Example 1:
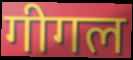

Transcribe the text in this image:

गीगल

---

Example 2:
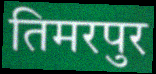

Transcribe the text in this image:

तिमरपुर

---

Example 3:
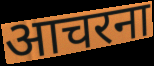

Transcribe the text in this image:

आचरना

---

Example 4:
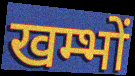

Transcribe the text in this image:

खम्भों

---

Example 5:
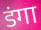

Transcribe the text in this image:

डंगा